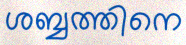
ശബ്ബത്തിനെ